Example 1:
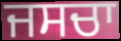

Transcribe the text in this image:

ਜਸਚਾ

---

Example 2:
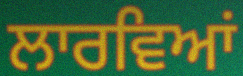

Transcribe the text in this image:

ਲਾਰਵਿਆਂ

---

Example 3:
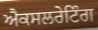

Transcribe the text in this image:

ਐਕਸਲਰੇਟਿੰਗ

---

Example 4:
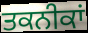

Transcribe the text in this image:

ਤਕਨੀਕਾਂ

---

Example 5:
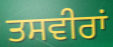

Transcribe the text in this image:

ਤਸਵੀਰਾਂ